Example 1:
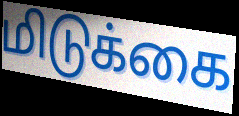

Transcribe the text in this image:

மிடுக்கை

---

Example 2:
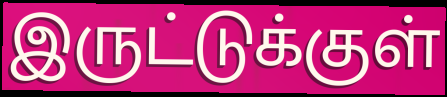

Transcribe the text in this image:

இருட்டுக்குள்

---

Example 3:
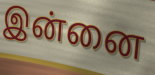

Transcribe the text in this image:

இன்னை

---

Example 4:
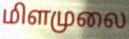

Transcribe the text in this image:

மிளமுலை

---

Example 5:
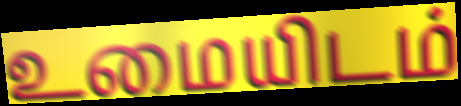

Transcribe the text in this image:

உமையிடம்